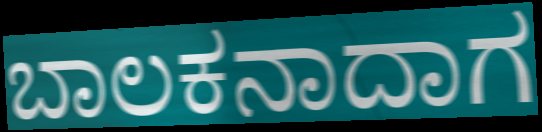
ಬಾಲಕನಾದಾಗ